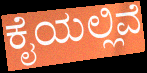
ಕೈಯಲ್ಲಿವೆ